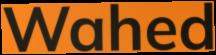
Wahed